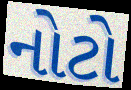
નોટો